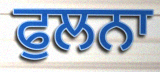
ਫੁਲਨਾ